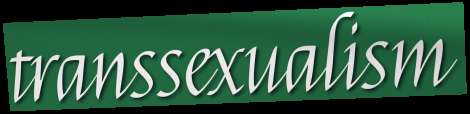
transsexualism